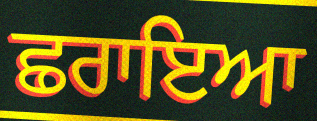
ਛਰਾਇਆ